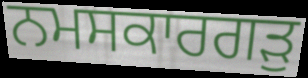
ਨਮਸਕਾਰਗੜੁ